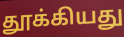
தூக்கியது